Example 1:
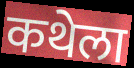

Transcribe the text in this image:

कथेला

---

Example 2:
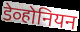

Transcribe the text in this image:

डेव्होनियन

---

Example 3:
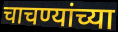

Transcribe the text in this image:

चाचण्यांच्या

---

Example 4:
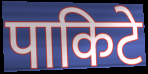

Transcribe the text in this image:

पाकिटे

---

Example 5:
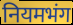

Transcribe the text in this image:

नियमभंग